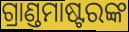
ଗ୍ରାଣ୍ଡମାଷ୍ଟରଙ୍କ